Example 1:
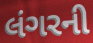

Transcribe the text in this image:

લંગરની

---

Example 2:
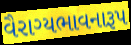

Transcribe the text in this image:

વૈરાગ્યભાવનારૂપ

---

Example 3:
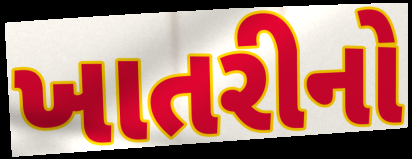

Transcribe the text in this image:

ખાતરીનો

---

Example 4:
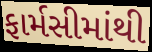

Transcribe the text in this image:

ફાર્મસીમાંથી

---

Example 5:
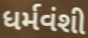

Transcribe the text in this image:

ધર્મવંશી